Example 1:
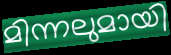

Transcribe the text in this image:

മിന്നലുമായി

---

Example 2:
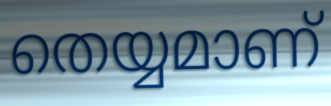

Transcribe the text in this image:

തെയ്യമാണ്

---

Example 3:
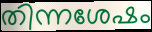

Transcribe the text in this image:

തിന്നശേഷം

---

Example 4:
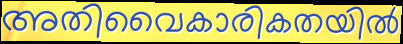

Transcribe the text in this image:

അതിവൈകാരികതയിൽ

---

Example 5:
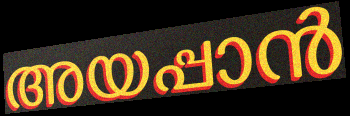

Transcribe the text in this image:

അയപ്പാൻ